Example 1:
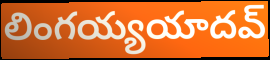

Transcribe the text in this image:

లింగయ్యయాదవ్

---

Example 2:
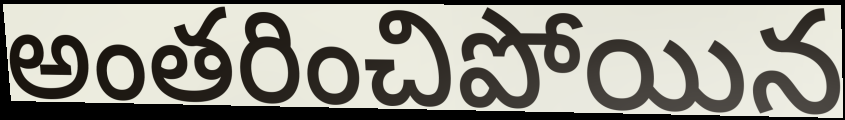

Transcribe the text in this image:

అంతరించిపోయిన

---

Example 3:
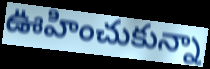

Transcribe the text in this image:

ఊహించుకున్నా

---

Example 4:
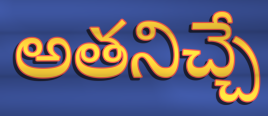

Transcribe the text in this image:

అతనిచ్చే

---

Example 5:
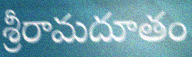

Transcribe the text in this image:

శ్రీరామదూతం